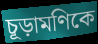
চূড়ামণিকে